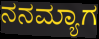
ನನಮ್ಯಾಗ